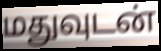
மதுவுடன்